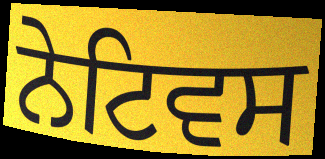
ਨੇਟਿਵਸ